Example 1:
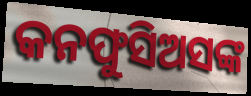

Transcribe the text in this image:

କନଫୁସିଅସଙ୍କ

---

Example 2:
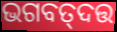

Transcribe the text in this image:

ଭଗବତ୍‌ଦତ୍ତ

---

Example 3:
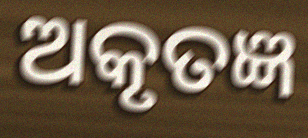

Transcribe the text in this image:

ଅକୃତଜ୍ଞ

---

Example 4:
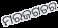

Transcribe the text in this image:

ମରଜଗତର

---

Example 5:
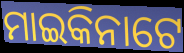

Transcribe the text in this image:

ମାଇକିନାଟେ